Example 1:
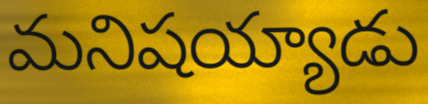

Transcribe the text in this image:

మనిషయ్యాడు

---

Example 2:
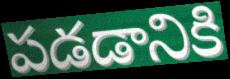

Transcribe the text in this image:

పడడానికి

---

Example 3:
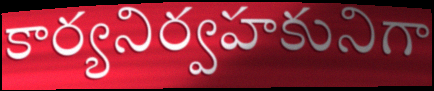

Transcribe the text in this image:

కార్యనిర్వహకునిగా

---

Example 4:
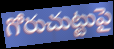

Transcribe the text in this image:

గోరుచుట్టుపై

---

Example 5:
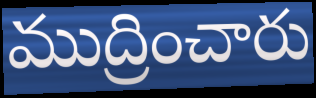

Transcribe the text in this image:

ముద్రించారు